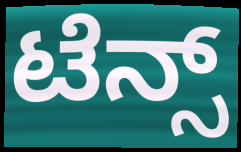
ಟೆನ್ಸ್